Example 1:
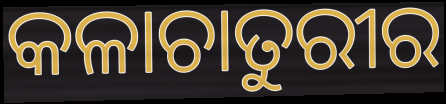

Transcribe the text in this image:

କଳାଚାତୁରୀର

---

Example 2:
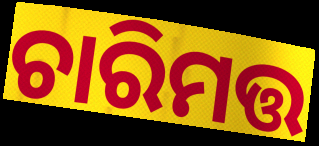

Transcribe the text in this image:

ଚାରିମତ୍ତ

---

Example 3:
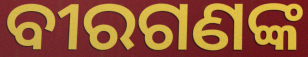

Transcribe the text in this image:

ବୀରଗଣଙ୍କ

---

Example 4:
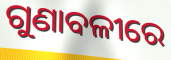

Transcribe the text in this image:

ଗୁଣାବଳୀରେ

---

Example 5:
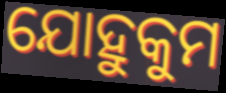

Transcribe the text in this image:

ଯୋହୁକୁମ